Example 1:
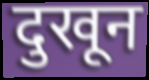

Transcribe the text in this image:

दुखून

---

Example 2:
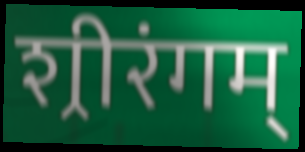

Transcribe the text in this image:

श्रीरंगम्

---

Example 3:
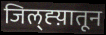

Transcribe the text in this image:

जिल्ह्य़ातून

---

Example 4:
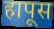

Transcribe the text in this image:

हापूस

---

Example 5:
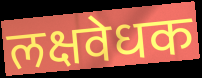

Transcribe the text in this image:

लक्षवेधक